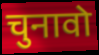
चुनावो